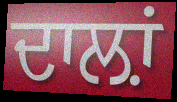
ਦਾਲ਼ਾਂ